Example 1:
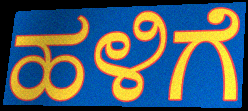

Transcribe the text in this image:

ಹಳಿಗೆ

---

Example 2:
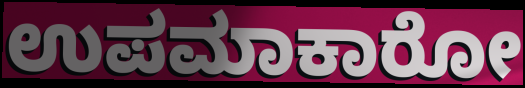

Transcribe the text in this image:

ಉಪಮಾಕಾರೋ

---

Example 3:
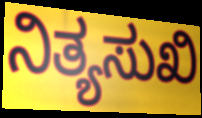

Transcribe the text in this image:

ನಿತ್ಯಸುಖಿ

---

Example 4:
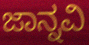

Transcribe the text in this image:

ಜಾನ್ನವಿ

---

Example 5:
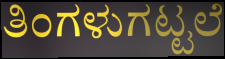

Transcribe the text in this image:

ತಿಂಗಳುಗಟ್ಟಲೆ